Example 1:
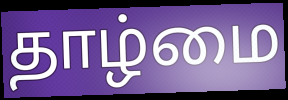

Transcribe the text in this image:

தாழ்மை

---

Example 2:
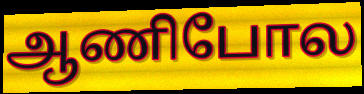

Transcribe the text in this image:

ஆணிபோல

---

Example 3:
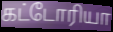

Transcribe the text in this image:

கட்டோரியா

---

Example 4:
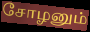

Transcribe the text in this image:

சோழனும்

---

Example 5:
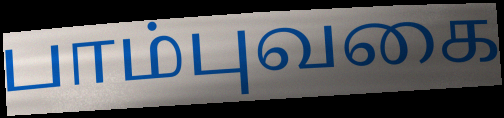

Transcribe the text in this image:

பாம்புவகை